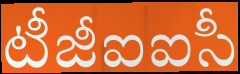
టీజీఐఐసీ